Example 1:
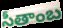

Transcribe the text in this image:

సీతాంబ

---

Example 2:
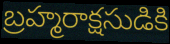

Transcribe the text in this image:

బ్రహ్మరాక్షసుడికి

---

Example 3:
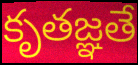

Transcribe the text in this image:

కృతజ్ఞతే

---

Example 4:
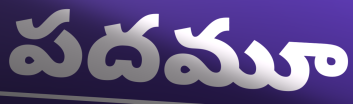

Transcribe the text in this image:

పదమూ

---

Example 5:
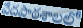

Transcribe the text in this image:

వేదపాఠశాలలో